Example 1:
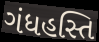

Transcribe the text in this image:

ગંધહસ્તિ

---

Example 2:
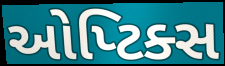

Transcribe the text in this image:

ઓપ્ટિક્સ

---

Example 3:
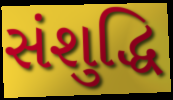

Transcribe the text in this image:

સંશુદ્ધિ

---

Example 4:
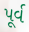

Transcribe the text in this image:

પૂર્વ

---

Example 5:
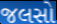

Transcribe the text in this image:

જલસો